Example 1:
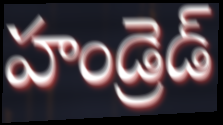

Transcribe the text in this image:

హండ్రెడ్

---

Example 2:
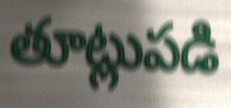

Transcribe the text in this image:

తూట్లుపడి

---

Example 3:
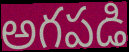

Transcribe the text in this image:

అగపడి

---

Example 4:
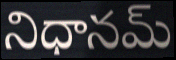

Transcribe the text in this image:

నిధానమ్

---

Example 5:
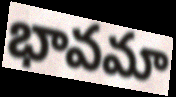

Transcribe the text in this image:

భావమా